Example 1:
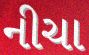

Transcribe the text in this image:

નીચા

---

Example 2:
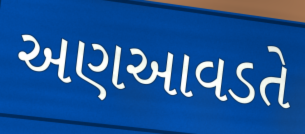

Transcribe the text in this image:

અણઆવડતે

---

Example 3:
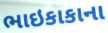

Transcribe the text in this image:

ભાઇકાકાના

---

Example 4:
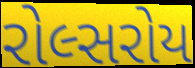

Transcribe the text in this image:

રોલ્સરોય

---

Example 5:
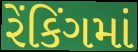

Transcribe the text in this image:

રેંકિંગમાં